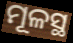
ମୂଳସ୍ଥ